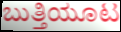
ಬುತ್ತಿಯೂಟ